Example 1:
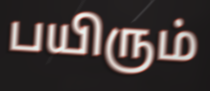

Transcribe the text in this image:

பயிரும்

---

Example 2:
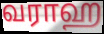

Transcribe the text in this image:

வராஹ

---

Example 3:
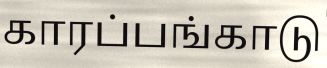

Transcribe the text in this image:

காரப்பங்காடு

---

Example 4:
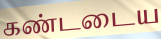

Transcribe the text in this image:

கண்டடைய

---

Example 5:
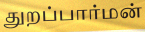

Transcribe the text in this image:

துறப்பார்மன்